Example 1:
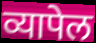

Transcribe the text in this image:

व्यापेल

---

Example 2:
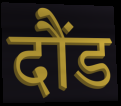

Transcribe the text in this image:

दौंड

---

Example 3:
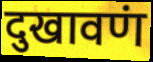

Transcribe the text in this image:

दुखावणं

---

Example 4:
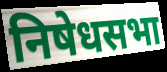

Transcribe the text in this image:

निषेधसभा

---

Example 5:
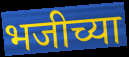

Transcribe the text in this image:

भजीच्या